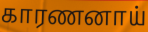
காரணனாய்